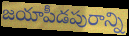
జయాపీడపురాన్ని